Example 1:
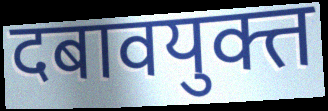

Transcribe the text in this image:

दबावयुक्त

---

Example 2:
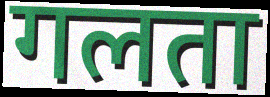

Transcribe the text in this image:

गलता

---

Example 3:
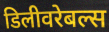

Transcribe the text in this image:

डिलीवरेबल्स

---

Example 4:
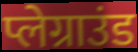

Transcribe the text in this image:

प्लेग्राउंड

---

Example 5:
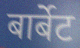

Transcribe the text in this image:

बार्बेट